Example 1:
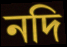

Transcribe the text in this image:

নদি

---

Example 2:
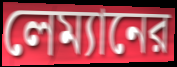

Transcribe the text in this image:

লেম্যানের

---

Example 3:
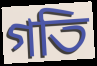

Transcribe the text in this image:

গতি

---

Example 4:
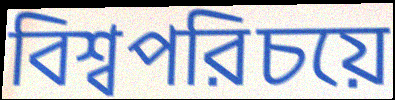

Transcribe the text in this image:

বিশ্বপরিচয়ে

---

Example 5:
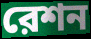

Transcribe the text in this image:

রেশন